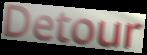
Detour